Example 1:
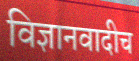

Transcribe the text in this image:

विज्ञानवादीच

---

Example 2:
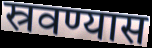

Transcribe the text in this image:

स्रवण्यास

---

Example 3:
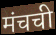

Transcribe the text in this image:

मंचची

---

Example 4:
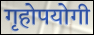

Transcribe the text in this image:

गृहोपयोगी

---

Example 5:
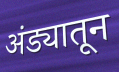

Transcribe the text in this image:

अंड्यातून